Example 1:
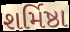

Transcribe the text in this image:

શર્મિષ્ઠા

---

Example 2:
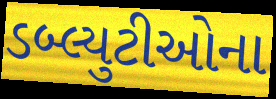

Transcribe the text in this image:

ડબ્લ્યુટીઓના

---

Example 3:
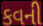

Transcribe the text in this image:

કવની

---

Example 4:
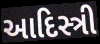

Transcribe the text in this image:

આદિસ્ત્રી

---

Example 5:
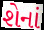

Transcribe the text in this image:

શેનાં